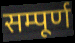
सम्‍पूर्ण